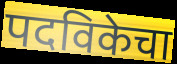
पदविकेचा